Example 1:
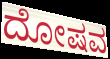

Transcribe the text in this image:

ದೋಷವ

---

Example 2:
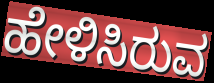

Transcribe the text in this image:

ಹೇಳಿಸಿರುವ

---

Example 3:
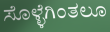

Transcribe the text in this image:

ಸೊಳ್ಳೆಗಿಂತಲೂ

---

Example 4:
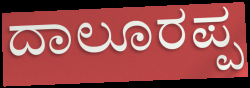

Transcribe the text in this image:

ದಾಲೂರಪ್ಪ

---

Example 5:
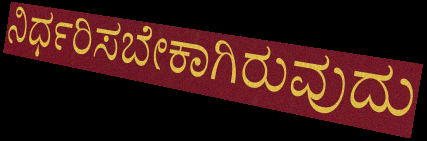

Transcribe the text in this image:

ನಿರ್ಧರಿಸಬೇಕಾಗಿರುವುದು